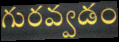
గురవ్వడం